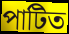
পাটিত